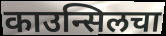
काउन्सिलचा